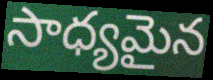
సాధ్యమైన